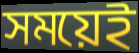
সময়েই